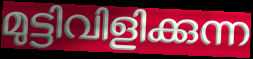
മുട്ടിവിളിക്കുന്ന